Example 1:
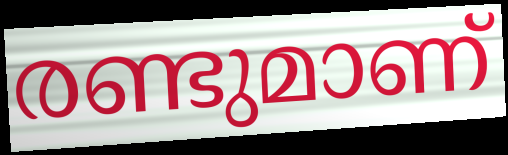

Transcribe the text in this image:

രണ്ടുമാണ്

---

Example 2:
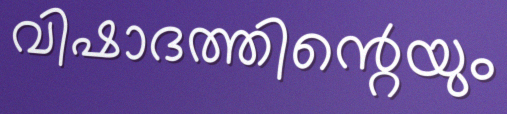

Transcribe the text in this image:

വിഷാദത്തിന്റെയും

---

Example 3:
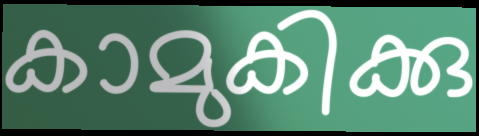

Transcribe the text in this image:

കാമുകിക്കു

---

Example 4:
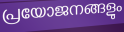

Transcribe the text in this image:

പ്രയോജനങ്ങളും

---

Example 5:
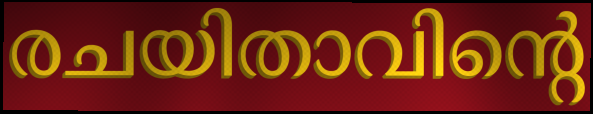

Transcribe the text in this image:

രചയിതാവിന്റെ